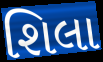
શિલા